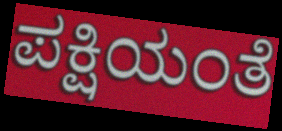
ಪಕ್ಷಿಯಂತೆ